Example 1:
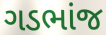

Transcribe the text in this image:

ગડભાંજ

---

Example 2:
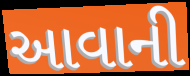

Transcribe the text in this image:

આવાની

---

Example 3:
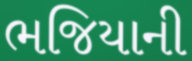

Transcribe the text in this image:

ભજિયાની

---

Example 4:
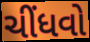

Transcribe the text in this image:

ચીંધવો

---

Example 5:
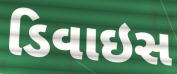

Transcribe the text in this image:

ડિવાઇસ